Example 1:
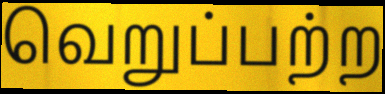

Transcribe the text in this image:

வெறுப்பற்ற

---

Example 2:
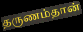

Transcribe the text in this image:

தருணம்தான்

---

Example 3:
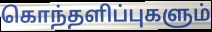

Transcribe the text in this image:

கொந்தளிப்புகளும்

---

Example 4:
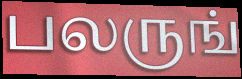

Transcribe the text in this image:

பலருங்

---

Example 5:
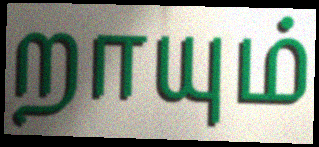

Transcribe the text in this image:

றாயும்